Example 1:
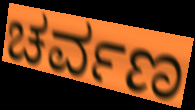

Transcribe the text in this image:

ಚರ್ವಣ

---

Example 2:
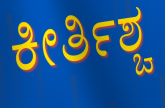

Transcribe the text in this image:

ಕೀರ್ತಿಶ್ಚ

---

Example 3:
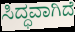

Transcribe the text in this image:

ಸಿದ್ಧವಾಗಿದೆ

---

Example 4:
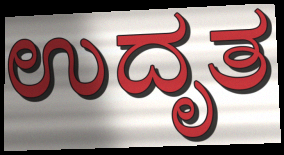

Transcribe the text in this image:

ಉದೃತ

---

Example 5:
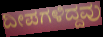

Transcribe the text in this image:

ದೀಪಗಳಿದ್ದವು